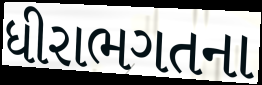
ધીરાભગતના